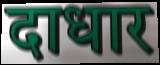
दाधार